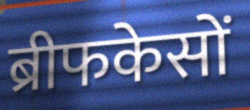
ब्रीफकेसों